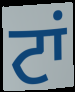
ਟਾਂ